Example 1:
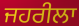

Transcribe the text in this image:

ਜਹਰੀਲਾ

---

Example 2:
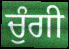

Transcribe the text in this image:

ਚੁੰਗੀ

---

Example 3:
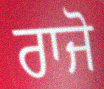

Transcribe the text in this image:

ਰਾਜੋ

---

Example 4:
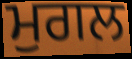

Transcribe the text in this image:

ਮੁਗਲ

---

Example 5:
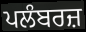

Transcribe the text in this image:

ਪਲੰਬਰਜ਼